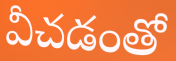
వీచడంతో